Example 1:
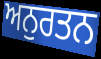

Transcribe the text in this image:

ਅਨੁਰਤਨ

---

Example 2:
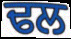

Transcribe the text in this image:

ਢਲ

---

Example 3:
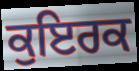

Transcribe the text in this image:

ਕੁਇਰਕ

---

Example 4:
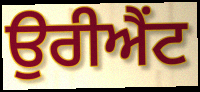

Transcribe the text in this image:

ਉਰੀਐਂਟ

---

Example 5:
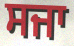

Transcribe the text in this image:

ਸਜਾ